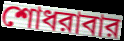
শোধরাবার